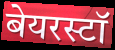
बेयरस्टॉ